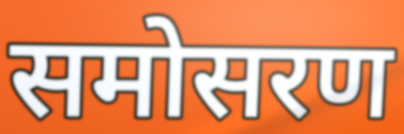
समोसरण